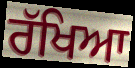
ਰੱਖਿਆ